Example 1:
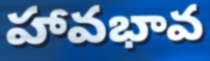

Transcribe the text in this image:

హావభావ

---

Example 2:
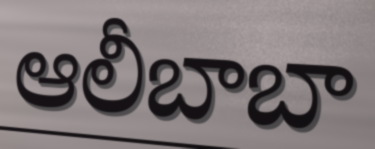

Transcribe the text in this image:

ఆలీబాబా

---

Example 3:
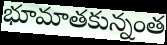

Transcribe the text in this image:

భూమాతకున్నంత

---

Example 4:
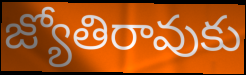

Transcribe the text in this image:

జ్యోతిరావుకు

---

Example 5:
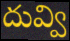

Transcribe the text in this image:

దువ్వి